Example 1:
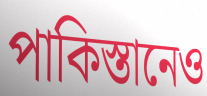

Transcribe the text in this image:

পাকিস্তানেও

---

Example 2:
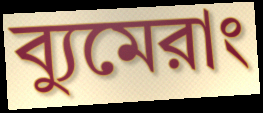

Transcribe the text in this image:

ব্যুমেরাং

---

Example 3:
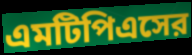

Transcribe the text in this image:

এমটিপিএসের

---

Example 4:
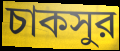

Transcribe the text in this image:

চাকসুর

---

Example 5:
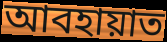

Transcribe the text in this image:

আবহায়াত